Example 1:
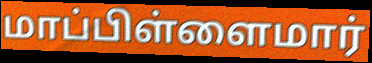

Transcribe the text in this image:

மாப்பிள்ளைமார்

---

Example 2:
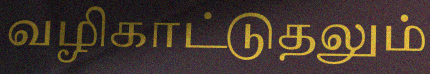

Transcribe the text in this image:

வழிகாட்டுதலும்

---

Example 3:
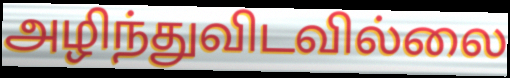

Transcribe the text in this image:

அழிந்துவிடவில்லை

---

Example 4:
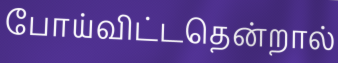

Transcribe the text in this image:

போய்விட்டதென்றால்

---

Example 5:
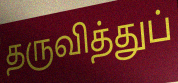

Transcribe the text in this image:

தருவித்துப்